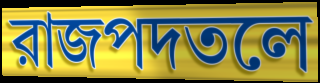
রাজপদতলে